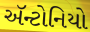
ઍન્ટોનિયો